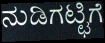
ನುಡಿಗಟ್ಟಿಗೆ